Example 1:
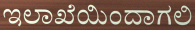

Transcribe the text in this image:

ಇಲಾಖೆಯಿಂದಾಗಲಿ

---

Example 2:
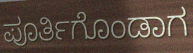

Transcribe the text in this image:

ಪೂರ್ತಿಗೊಂಡಾಗ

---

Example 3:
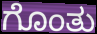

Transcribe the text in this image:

ಗೊಂತು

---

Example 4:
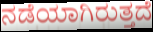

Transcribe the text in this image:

ನಡೆಯಾಗಿರುತ್ತದೆ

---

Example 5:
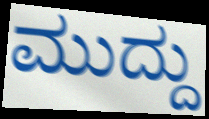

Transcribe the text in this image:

ಮುದ್ದು